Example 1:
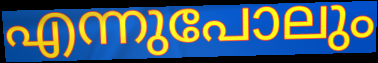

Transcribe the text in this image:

എന്നുപോലും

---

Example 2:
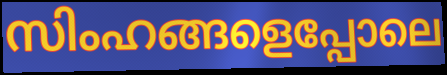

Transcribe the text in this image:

സിംഹങ്ങളെപ്പോലെ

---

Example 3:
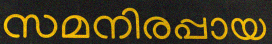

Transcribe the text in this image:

സമനിരപ്പായ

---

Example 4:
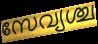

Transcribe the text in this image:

സേവ്യശ്ച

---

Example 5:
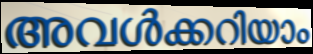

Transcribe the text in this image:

അവൾക്കറിയാം